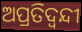
ଅପ୍ରତିଦ୍ବନ୍ଦୀ